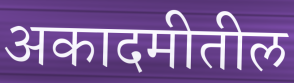
अकादमीतील